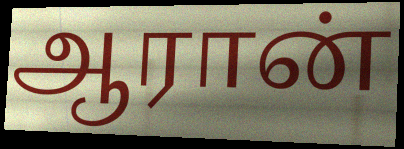
ஆரான்